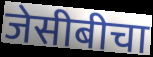
जेसीबीचा